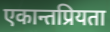
एकान्तप्रियता